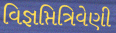
વિજ્ઞપ્તિત્રિવેણી